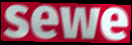
sewe